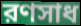
রণসাধ